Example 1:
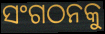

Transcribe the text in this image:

ସଂଗଠନକୁ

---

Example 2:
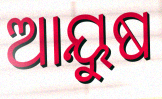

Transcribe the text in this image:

ଆୟୁଷ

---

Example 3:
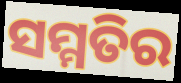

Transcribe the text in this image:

ସମ୍ମତିର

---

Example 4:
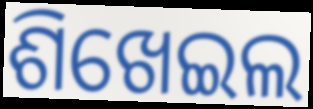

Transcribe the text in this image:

ଶିଖେଇଲ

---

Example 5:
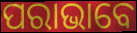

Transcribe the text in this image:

ପରାଭାବେ